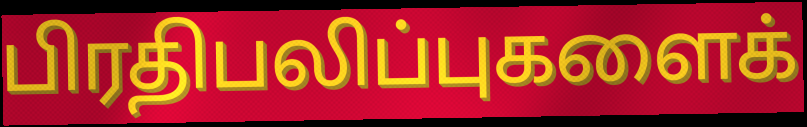
பிரதிபலிப்புகளைக்